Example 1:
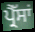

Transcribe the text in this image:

ਪ੍ਰੈੱਸਾਂ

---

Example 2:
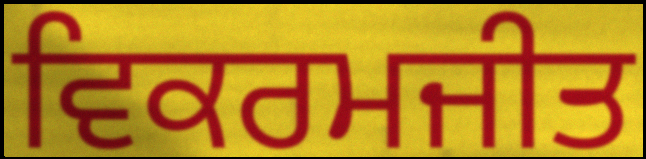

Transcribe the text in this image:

ਵਿਕਰਮਜੀਤ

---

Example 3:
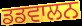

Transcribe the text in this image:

ਡਡਵਾਲਨ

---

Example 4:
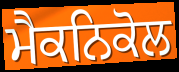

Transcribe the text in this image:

ਮੈਕਨਿਕੋਲ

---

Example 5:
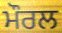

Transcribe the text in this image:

ਮੌਰਲ